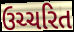
ઉચ્ચરિત